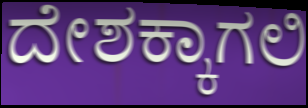
ದೇಶಕ್ಕಾಗಲಿ